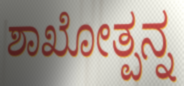
ಶಾಖೋತ್ಪನ್ನ